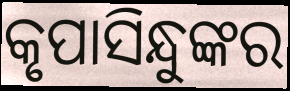
କୃପାସିନ୍ଧୁଙ୍କର